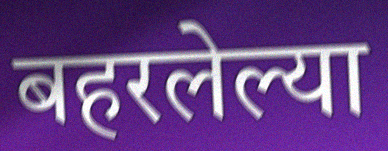
बहरलेल्या